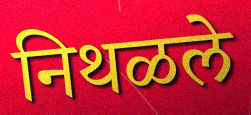
निथळले